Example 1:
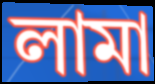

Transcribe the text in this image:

লামা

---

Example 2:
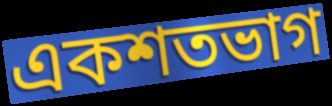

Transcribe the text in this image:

একশতভাগ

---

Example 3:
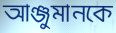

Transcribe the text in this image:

আঞ্জুমানকে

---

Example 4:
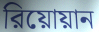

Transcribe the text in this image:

রিয়োয়ান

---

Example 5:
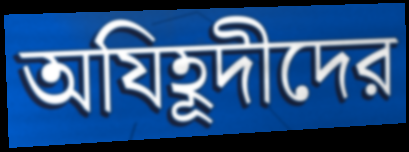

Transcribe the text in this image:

অযিহূদীদের